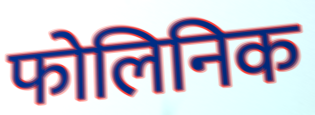
फोलिनिक